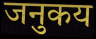
जनुकय